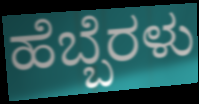
ಹೆಬ್ಬೆರಳು